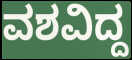
ವಶವಿದ್ದ